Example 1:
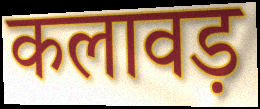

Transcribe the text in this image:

कलावड़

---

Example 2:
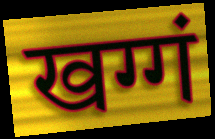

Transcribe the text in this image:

खग्गं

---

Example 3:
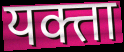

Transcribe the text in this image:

यक्ता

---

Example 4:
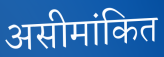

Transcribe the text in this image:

असीमांकित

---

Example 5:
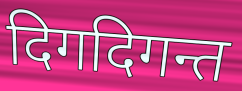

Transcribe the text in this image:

दिगदिगन्त